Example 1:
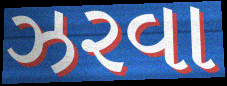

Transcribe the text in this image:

ઝરવા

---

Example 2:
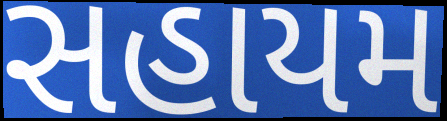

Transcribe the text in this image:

સહાયમ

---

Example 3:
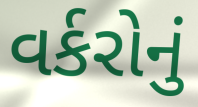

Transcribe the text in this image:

વર્કરોનું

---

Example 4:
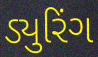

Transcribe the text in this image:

ડ્યુરિંગ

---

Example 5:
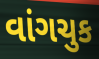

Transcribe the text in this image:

વાંગચુક